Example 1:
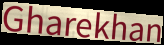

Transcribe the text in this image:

Gharekhan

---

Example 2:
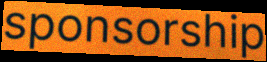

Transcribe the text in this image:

sponsorship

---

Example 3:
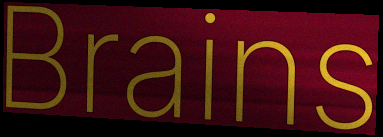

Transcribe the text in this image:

Brains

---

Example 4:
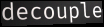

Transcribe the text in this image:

decouple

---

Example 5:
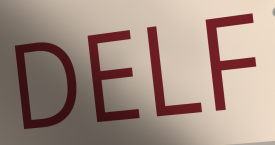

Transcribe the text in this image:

DELF